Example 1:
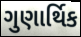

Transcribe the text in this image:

ગુણાર્થિક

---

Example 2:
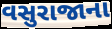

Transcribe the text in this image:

વસુરાજાના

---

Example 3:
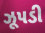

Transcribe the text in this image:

ઝૂપડી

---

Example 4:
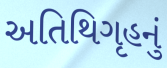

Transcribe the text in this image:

અતિથિગૃહનું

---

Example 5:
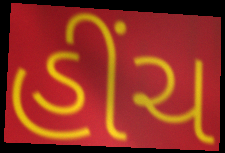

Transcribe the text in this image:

હીંચ